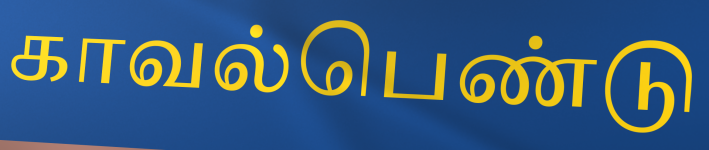
காவல்பெண்டு